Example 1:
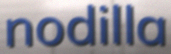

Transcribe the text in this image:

nodilla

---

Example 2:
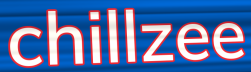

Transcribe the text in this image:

chillzee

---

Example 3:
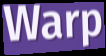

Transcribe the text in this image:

Warp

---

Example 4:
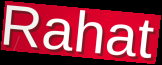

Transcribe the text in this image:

Rahat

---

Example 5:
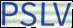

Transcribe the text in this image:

PSLV